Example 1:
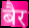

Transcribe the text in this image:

बैर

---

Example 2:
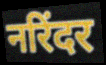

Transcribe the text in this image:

नरिंदर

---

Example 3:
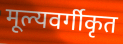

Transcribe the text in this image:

मूल्यवर्गीकृत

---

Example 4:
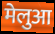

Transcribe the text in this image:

मेलुआ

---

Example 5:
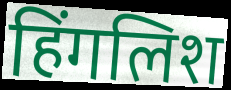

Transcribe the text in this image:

हिंगलिश